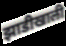
झाडीखाली